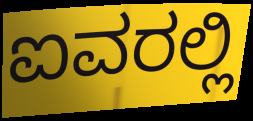
ಐವರಲ್ಲಿ